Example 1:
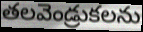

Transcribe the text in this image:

తలవెండ్రుకలను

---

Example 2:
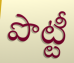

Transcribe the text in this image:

పొట్టీ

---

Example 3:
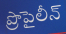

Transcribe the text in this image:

ప్రొపైలీన్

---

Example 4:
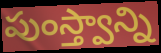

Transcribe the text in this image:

పుంస్త్వాన్ని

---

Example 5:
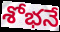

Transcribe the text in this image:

శోభనే